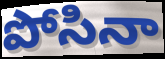
పోసినా